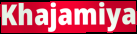
Khajamiya